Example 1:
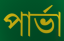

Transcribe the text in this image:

পার্ভা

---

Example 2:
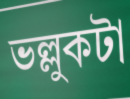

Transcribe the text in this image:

ভল্লুকটা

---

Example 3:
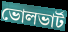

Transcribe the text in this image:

ভোলভার্ট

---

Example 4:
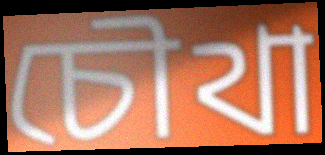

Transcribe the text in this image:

চৌথা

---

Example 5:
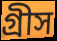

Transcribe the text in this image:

গ্রীস